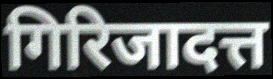
गिरिजादत्त